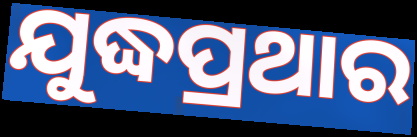
ଯୁଦ୍ଧପ୍ରଥାର